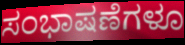
ಸಂಭಾಷಣೆಗಳೂ